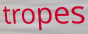
tropes